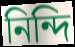
নিন্দি